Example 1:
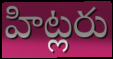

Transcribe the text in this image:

హిట్లరు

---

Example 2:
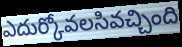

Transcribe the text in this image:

ఎదుర్కోవలసివచ్చింది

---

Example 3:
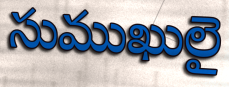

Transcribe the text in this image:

సుముఖులై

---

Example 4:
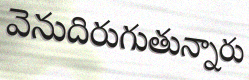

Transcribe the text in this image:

వెనుదిరుగుతున్నారు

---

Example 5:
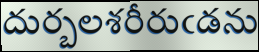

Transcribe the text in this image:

దుర్బలశరీరుఁడను